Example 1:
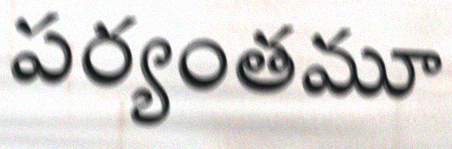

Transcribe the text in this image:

పర్యంతమూ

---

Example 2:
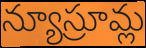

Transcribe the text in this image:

న్యూస్రూమ్ల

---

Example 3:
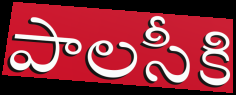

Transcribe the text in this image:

పాలసీకి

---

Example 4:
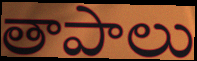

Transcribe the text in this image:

తాపాలు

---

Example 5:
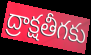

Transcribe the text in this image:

ద్రాక్షతీగకు